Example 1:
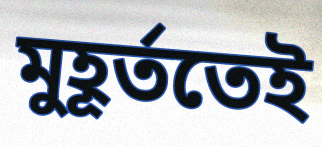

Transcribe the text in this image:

মুহূৰ্ততেই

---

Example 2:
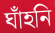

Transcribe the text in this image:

ঘাঁহনি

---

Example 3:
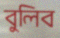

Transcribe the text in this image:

বুলিব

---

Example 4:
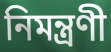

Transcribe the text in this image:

নিমন্ত্ৰণী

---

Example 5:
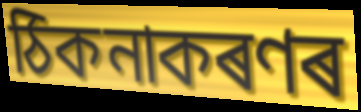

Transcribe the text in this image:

ঠিকনাকৰণৰ